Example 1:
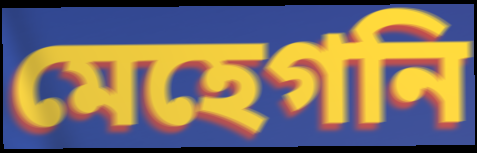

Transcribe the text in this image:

মেহেগনি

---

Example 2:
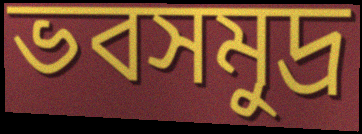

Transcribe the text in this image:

ভবসমুদ্র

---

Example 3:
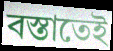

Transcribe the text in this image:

বস্তাতেই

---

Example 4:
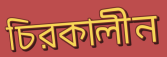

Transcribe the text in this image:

চিরকালীন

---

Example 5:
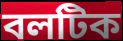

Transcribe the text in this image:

বলটিক